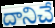
దానిచే